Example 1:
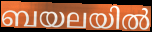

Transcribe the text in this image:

ബയലയിൽ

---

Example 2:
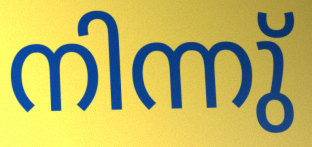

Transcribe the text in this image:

നിന്നു്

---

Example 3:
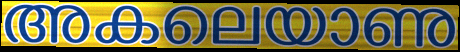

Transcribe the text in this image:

അകലെയാണു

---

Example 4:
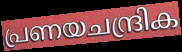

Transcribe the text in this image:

പ്രണയചന്ദ്രിക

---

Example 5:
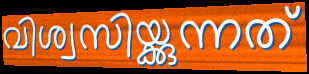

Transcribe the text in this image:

വിശ്വസിയ്ക്കുന്നത്